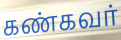
கண்கவர்